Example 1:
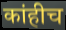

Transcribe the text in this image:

कांहीच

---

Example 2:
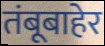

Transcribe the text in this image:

तंबूबाहेर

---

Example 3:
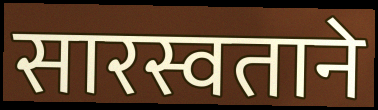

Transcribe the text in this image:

सारस्वताने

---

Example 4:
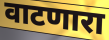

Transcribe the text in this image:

वाटणारा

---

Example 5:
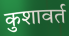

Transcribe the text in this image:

कुशावर्त